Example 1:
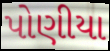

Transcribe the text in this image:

પોણીયા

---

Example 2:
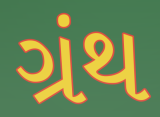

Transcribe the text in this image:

ગ્રંથ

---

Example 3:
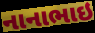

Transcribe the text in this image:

નાનાભાઇ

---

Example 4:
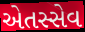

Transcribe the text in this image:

એતસ્સેવ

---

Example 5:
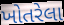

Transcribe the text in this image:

ખોતરેલા